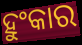
ହୁଂକାର